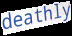
deathly